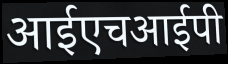
आईएचआईपी